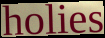
holies